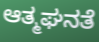
ಆತ್ಮಘನತೆ